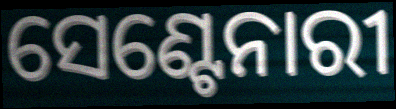
ସେଣ୍ଟେନାରୀ